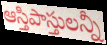
ఆస్తిపాస్తులన్నీ